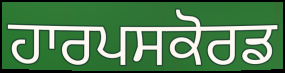
ਹਾਰਪਸਕੋਰਡ